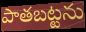
పాతబట్టను